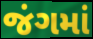
જંગમાં